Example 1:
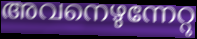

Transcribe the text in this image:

അവനെഴുന്നേറ്റു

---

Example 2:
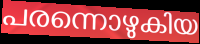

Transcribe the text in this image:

പരന്നൊഴുകിയ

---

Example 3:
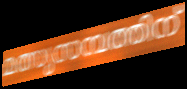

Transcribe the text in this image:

മത്സ്യസമ്പത്തിന്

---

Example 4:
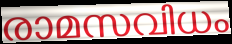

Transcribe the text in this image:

രാമസവിധം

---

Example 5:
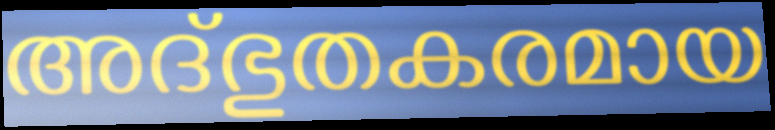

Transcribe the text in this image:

അദ്ഭുതകരമായ